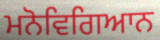
ਮਨੋਵਿਗਿਆਨ